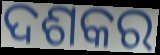
ଦଶକର